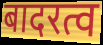
बादरत्व